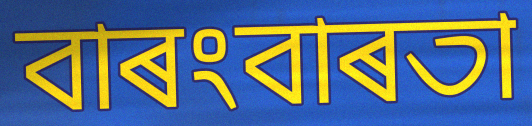
বাৰংবাৰতা